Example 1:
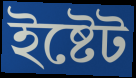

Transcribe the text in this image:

ইষ্টেট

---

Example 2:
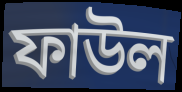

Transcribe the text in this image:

ফাউল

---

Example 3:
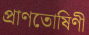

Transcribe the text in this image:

প্ৰাণতোষিণী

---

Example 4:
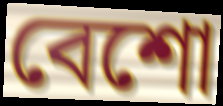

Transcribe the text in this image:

বেশো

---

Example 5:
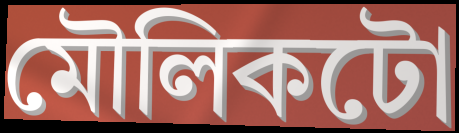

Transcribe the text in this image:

মৌলিকটো